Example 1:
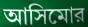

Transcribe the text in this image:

আসিমোর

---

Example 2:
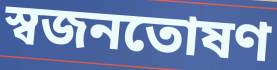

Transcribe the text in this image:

স্বজনতোষণ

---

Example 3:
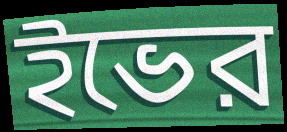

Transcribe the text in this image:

ইভের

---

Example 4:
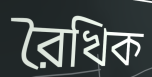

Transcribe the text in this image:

রৈখিক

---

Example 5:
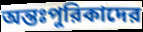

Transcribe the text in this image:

অন্তঃপুরিকাদের